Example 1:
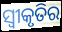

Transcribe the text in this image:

ସ୍ୱୀକୃତିର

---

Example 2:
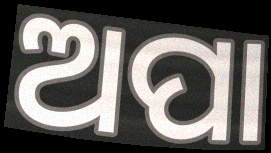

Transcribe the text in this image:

ଅପା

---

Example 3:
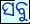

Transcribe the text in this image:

ସବୁ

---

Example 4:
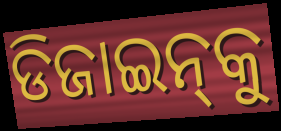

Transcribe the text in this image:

ଡିଜାଇନ୍‌କୁ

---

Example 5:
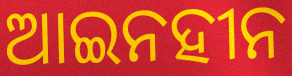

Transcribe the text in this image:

ଆଇନହୀନ